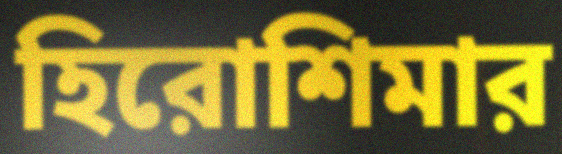
হিরোশিমার